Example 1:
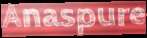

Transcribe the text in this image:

Anaspure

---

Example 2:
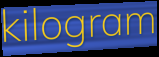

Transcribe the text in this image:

kilogram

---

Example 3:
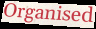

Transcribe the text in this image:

Organised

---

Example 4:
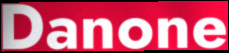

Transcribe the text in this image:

Danone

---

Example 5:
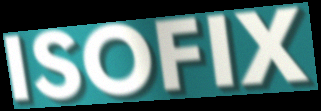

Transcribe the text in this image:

ISOFIX